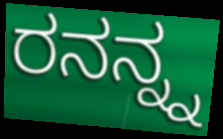
ರನನ್ನ್ನ